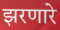
झरणारे